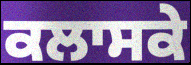
ਕਲਾਸਕੇ